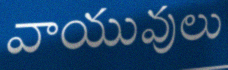
వాయువులు